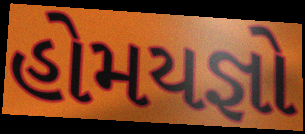
હોમયજ્ઞો